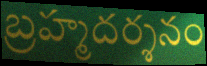
బ్రహ్మదర్శనం